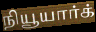
நியூயார்க்